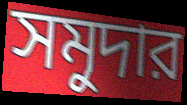
সমুদার